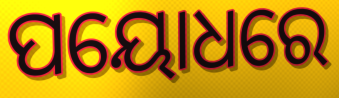
ପୟୋଧରେ